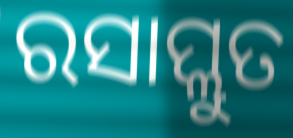
ରସାପ୍ଲୁତ